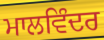
ਮਾਲਵਿੰਦਰ